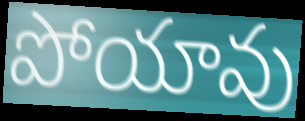
పోయావు